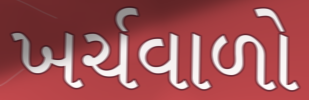
ખર્ચવાળો